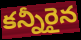
కన్నీరైన